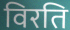
विरति